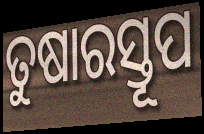
ତୁଷାରସ୍ତୂପ